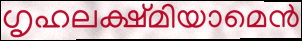
ഗൃഹലക്ഷ്മിയാമെൻ